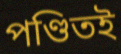
পণ্ডিতই